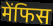
मेंफिस